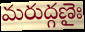
మరుద్గణైః